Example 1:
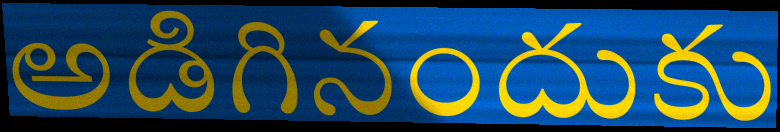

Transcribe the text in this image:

అడిగినందుకు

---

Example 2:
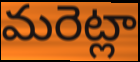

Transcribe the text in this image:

మరెట్లా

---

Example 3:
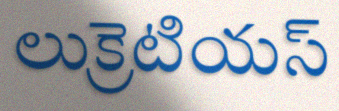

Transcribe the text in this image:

లుక్రెటియస్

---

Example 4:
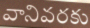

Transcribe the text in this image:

వానివరకు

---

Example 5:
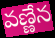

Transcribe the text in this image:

వణ్ణేన